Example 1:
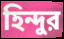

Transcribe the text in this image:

হিন্দুর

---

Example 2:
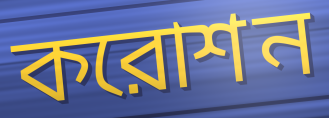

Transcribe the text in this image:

করোশন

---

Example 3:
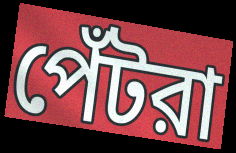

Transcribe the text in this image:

পেঁটরা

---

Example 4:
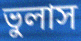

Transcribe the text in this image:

ভুলাস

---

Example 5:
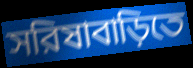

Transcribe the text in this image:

সরিষাবাড়িতে